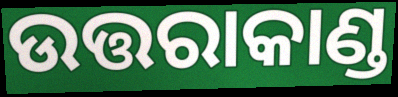
ଉତ୍ତରାକାଣ୍ଡ